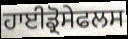
ਹਾਈਡ੍ਰੋਸੇਫਲਸ